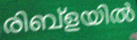
രിബ്ളയിൽ